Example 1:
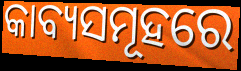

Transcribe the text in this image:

କାବ୍ୟସମୂହରେ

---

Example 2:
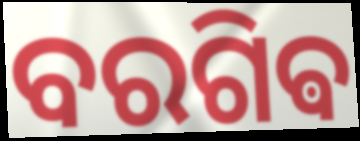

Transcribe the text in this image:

ବରଗିଵ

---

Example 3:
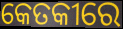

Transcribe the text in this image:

କେତକୀରେ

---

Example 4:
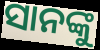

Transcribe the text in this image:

ସାନଙ୍କୁ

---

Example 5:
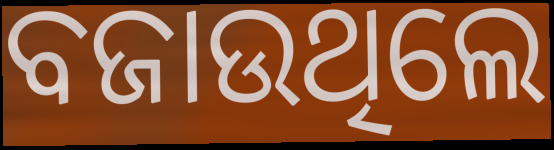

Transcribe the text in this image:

ବଜାଉଥିଲେ